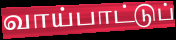
வாய்பாட்டுப்